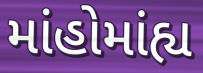
માંહોમાંહ્ય